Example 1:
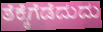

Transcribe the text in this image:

ತೆಕ್ಕೆಗೆಡೆದುದು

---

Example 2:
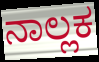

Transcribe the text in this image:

ನಾಲ್ಲಕ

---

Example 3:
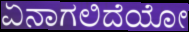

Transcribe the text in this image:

ಏನಾಗಲಿದೆಯೋ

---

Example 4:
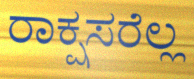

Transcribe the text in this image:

ರಾಕ್ಷಸರೆಲ್ಲ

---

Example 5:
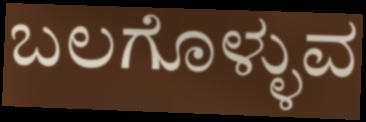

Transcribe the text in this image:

ಬಲಗೊಳ್ಳುವ